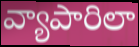
వ్యాపారిలా